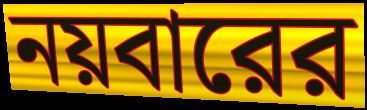
নয়বারের